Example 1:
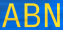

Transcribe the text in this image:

ABN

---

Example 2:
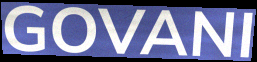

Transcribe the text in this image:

GOVANI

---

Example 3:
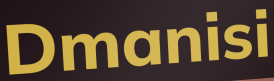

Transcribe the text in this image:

Dmanisi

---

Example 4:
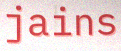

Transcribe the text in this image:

jains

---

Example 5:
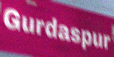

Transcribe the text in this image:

Gurdaspur